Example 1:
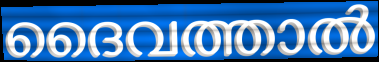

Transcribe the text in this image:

ദൈവത്താൽ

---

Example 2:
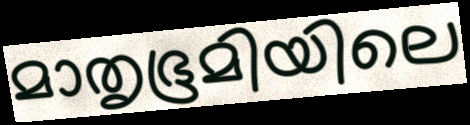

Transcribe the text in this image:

മാതൃഭൂമിയിലെ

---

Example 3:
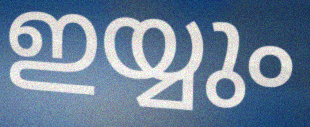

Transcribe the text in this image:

ഇയ്യും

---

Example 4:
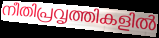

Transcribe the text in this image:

നീതിപ്രവൃത്തികളിൽ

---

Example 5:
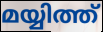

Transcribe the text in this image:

മയ്യിത്ത്